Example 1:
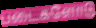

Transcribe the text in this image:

படைகளோடு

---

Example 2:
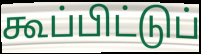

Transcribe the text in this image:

கூப்பிட்டுப்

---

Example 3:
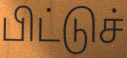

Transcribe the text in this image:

பிட்டுச்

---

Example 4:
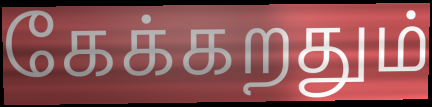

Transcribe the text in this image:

கேக்கறதும்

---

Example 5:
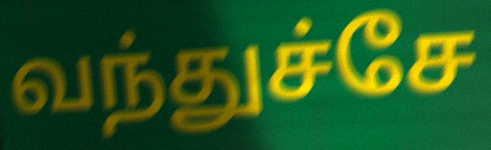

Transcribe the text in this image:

வந்துச்சே